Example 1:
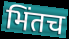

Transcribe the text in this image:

भिंतच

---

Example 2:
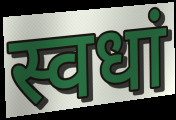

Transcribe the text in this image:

स्वधां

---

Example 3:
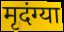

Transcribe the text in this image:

मृदंग्या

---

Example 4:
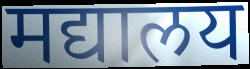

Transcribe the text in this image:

मद्यालय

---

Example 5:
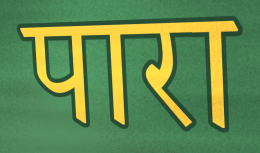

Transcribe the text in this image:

पारा